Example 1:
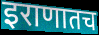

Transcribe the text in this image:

इराणातच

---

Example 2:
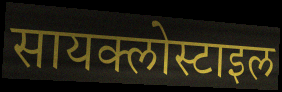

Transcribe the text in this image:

सायक्लोस्टाइल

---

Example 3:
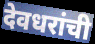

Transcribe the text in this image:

देवधरांची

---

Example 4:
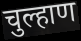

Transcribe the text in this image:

चुल्हाण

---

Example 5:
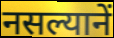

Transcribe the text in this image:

नसल्यानें